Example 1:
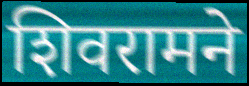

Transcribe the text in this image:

शिवरामने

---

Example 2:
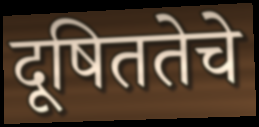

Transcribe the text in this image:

दूषिततेचे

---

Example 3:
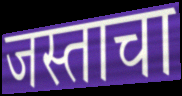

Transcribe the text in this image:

जस्ताचा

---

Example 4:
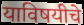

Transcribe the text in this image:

याविषयीचे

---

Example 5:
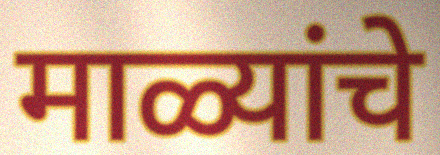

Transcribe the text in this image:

माळ्यांचे